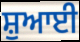
ਸ਼ੁਆਈ